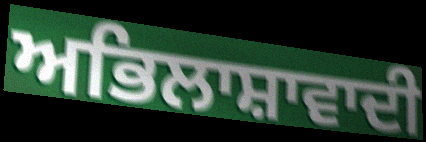
ਅਭਿਲਾਸ਼ਾਵਾਦੀ